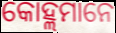
କୋହ୍ଲମାନେ